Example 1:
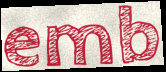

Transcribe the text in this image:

emb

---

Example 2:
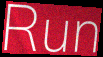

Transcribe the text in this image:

Run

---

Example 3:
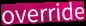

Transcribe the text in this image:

override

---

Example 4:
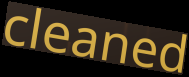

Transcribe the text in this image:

cleaned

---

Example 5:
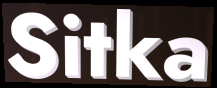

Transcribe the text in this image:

Sitka